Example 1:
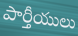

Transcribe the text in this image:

పార్తీయులు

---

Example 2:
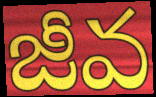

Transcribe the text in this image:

జీవ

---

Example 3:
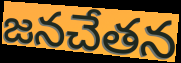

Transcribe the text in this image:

జనచేతన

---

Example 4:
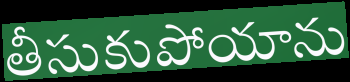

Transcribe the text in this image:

తీసుకుపోయాను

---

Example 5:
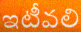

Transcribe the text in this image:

ఇటీవలి